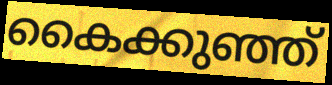
കൈക്കുഞ്ഞ്